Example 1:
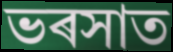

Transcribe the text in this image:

ভৰসাত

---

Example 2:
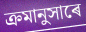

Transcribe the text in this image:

ক্ৰমানুসাৰে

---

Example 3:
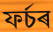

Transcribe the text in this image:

ফৰ্চৰ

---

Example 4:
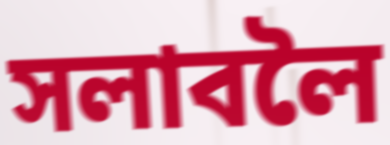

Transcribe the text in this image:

সলাবলৈ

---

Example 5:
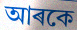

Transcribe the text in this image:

আৰকে